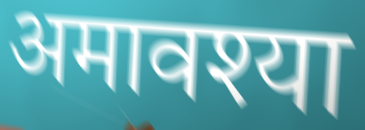
अमावश्या